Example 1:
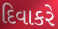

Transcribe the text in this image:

દિવાકરે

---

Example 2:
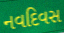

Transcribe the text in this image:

નવદિવસ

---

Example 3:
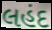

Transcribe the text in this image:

લહંદ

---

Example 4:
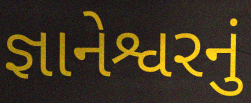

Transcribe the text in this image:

જ્ઞાનેશ્વરનું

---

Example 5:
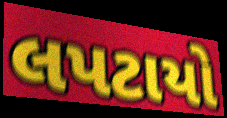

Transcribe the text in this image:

લપટાયો